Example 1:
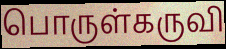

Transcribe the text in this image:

பொருள்கருவி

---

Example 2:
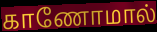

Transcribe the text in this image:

காணோமால்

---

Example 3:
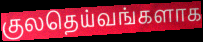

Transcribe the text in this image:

குலதெய்வங்களாக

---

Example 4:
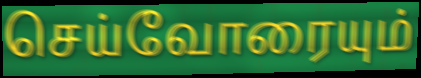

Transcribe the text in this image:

செய்வோரையும்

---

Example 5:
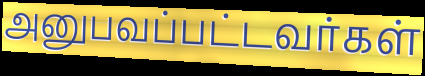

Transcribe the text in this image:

அனுபவப்பட்டவர்கள்